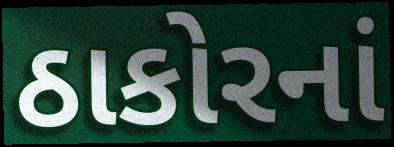
ઠાકોરનાં